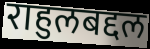
राहुलबद्दल